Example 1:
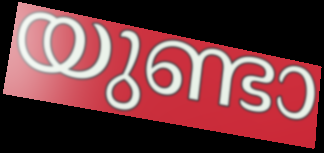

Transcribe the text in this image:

യുണ്ടാ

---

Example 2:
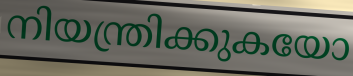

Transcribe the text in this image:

നിയന്ത്രിക്കുകയോ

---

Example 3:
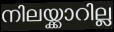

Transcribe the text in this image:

നിലയ്ക്കാറില്ല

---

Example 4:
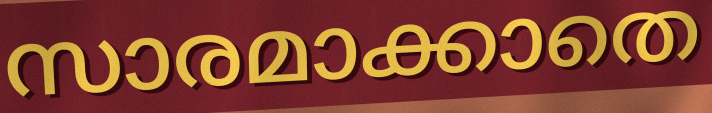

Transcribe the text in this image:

സാരമാക്കാതെ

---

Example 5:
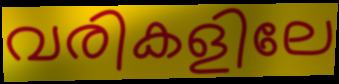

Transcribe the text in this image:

വരികളിലേ